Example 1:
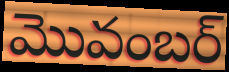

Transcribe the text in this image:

మొవంబర్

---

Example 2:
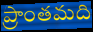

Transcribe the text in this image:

ప్రాంతమది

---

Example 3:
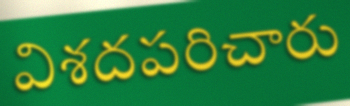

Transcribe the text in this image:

విశదపరిచారు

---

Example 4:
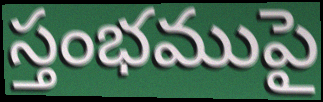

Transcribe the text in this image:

స్తంభముపై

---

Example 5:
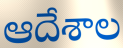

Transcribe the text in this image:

ఆదేశాల